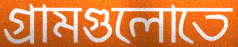
গ্রামগুলোতে